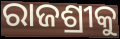
ରାଜଶ୍ରୀକୁ